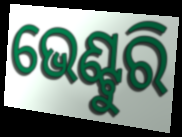
ଭେଣ୍ଟୁରି